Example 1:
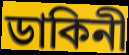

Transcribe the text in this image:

ডাকিনী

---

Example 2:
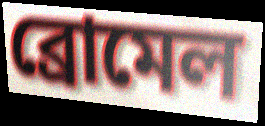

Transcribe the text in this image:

ব্রোমেল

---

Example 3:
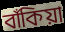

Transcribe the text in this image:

বাঁকিয়া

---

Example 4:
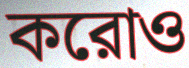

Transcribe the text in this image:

করোও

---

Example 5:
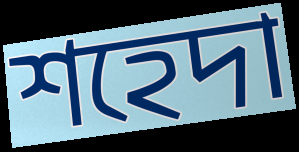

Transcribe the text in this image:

শহেদা